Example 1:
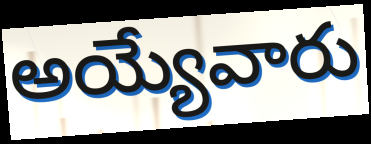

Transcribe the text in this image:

అయ్యేవారు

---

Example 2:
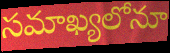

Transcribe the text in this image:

సమాఖ్యలోనూ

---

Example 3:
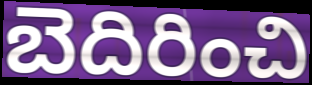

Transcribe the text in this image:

బెదిరించి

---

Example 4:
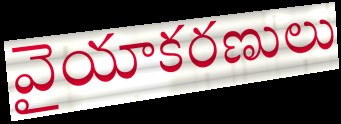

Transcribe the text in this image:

వైయాకరణులు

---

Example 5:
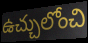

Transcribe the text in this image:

ఉచ్చులోంచి